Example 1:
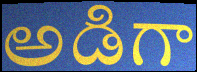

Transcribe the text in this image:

అడిగా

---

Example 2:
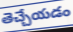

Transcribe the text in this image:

తెచ్చేయడం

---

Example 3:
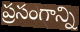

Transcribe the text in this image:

ప్రసంగాన్ని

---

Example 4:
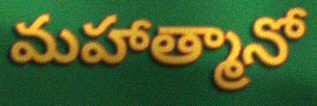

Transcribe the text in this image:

మహాత్మానో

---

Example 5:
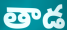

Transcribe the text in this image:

తాడ